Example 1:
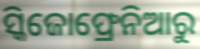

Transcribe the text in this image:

ସ୍କିଜୋଫ୍ରେନିଆରୁ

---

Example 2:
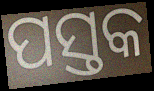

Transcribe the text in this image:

ପସ୍ତକ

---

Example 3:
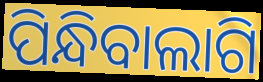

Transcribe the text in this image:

ପିନ୍ଧିବାଲାଗି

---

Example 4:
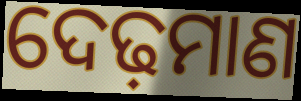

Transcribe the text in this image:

ଦେଢ଼ମାଣ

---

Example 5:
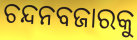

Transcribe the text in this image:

ଚନ୍ଦନବଜାରକୁ